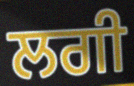
ਲਗੀ